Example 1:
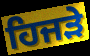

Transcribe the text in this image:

ਹਿਜੜੇ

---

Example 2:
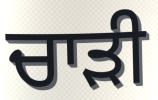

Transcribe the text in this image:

ਚਾਡ਼ੀ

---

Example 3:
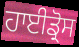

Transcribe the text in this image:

ਹਾਈਡ੍ਰੋਸ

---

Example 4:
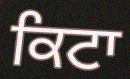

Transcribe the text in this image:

ਕਿਟਾ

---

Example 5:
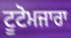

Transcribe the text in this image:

ਟੂਟੋਮਜਾਰਾ